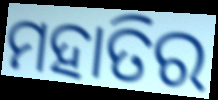
ମହାତିର